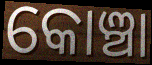
କୋଞ୍ଚା